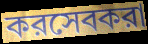
করসেবকরা